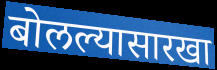
बोलल्यासारखा